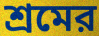
শ্রমের